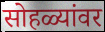
सोहळ्यांवर